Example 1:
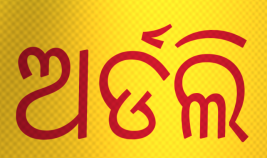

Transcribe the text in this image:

ଅର୍ଡଲି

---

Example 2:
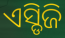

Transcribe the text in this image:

ଏସ୍ଡିଜି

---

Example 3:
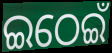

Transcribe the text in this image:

ଇଠେଇଁ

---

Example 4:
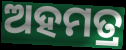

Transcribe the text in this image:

ଅହମତ୍ର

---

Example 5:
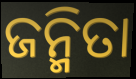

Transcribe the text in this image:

ଜନ୍ମିତା